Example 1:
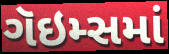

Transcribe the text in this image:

ગૅઇમ્સમાં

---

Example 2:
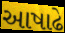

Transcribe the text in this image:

આષાઢે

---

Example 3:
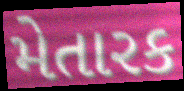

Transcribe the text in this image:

મેતારક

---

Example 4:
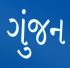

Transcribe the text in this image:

ગુંજન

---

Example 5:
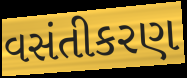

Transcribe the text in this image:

વસંતીકરણ